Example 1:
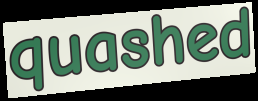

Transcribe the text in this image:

quashed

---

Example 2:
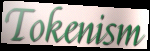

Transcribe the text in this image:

Tokenism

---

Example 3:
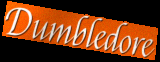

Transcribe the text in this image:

Dumbledore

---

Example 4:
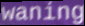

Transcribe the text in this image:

waning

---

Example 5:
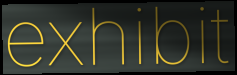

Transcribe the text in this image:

exhibit